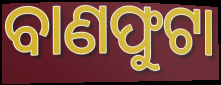
ବାଣଫୁଟା